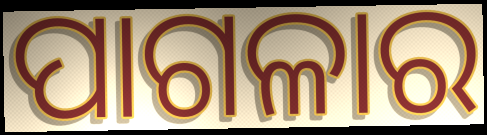
ପାଗଳାର